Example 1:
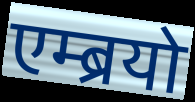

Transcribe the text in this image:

एम्ब्रयो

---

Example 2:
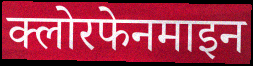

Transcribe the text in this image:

क्लोरफेनमाइन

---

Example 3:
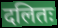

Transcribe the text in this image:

दलितः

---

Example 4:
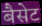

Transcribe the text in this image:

बैसेट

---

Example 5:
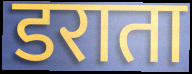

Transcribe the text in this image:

डराता